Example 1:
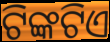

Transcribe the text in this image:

ଟିଙ୍କଟିଏ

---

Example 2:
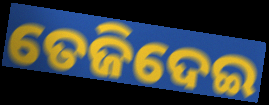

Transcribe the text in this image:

ତେଜିଦେଇ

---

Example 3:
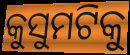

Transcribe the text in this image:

କୁସୁମଟିକୁ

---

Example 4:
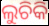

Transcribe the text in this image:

ଲୁଚିକି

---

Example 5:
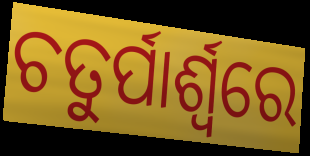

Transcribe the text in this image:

ଚତୁର୍ପାର୍ଶ୍ୱରେ